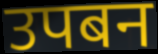
उपबन